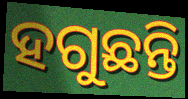
ହଗୁଛନ୍ତି